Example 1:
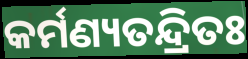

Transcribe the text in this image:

କର୍ମଣ୍ୟତନ୍ଦ୍ରିତଃ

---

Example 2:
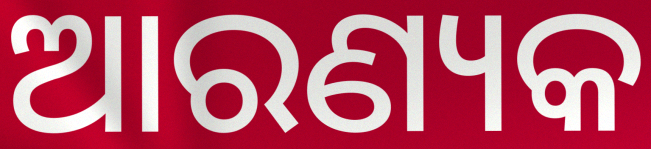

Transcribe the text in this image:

ଆରଣ୍ୟକ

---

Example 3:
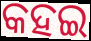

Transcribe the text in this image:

କହଇ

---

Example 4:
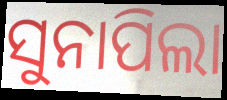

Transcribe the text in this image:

ସୁନାପିଲା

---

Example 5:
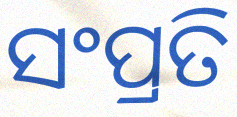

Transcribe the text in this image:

ସଂପ୍ରତି